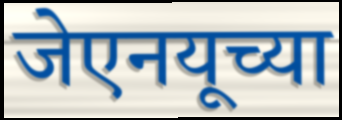
जेएनयूच्या